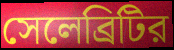
সেলেব্রিটির